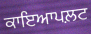
ਕਾਇਆਪਲ਼ਟ